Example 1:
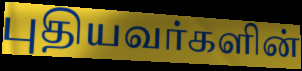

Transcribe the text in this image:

புதியவர்களின்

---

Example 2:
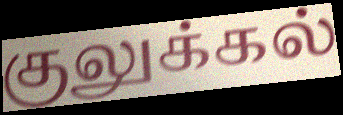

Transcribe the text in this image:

குலுக்கல்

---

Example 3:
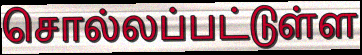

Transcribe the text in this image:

சொல்லப்பட்டுள்ள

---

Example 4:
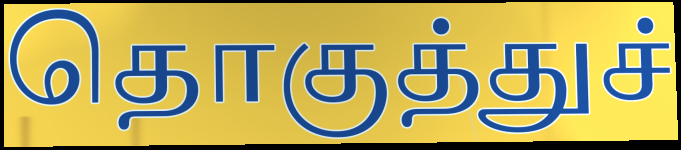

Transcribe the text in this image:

தொகுத்துச்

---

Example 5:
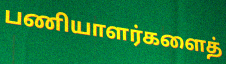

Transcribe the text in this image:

பணியாளர்களைத்